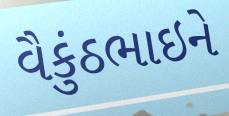
વૈકુંઠભાઇને